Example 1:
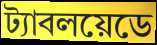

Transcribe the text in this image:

ট্যাবলয়েডে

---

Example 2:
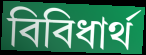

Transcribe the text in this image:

বিবিধার্থ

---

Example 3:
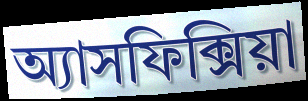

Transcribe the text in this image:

অ্যাসফিক্সিয়া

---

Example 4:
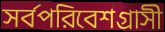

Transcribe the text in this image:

সর্বপরিবেশগ্রাসী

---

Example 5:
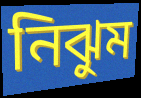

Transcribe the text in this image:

নিঝুম